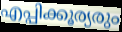
എപ്പിക്കൂര്യരും